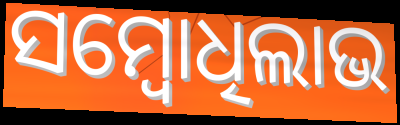
ସମ୍ବୋଧିଲାଭ